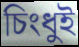
চিংধুই